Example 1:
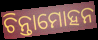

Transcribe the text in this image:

ଚିନ୍ତାମୋହନ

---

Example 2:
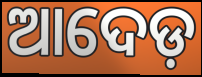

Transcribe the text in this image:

ଆଦେଡ଼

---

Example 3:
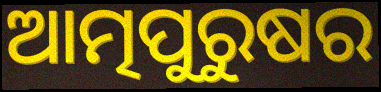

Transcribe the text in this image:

ଆତ୍ମପୁରୁଷର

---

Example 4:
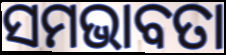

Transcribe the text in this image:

ସମଭାବତା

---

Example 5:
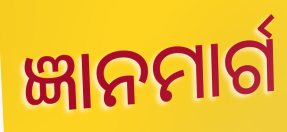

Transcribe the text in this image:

ଜ୍ଞାନମାର୍ଗ